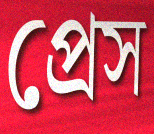
প্রেস